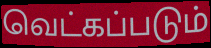
வெட்கப்படும்